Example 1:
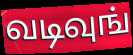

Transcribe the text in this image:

வடிவுங்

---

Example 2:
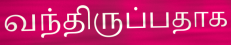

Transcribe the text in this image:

வந்திருப்பதாக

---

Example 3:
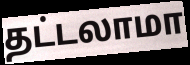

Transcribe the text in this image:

தட்டலாமா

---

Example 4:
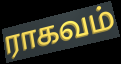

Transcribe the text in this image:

ராகவம்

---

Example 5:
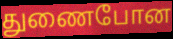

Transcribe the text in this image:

துணைபோன